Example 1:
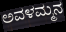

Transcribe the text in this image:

ಅವಳಮ್ಮನ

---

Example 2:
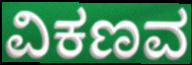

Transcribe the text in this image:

ವಿಕಣವ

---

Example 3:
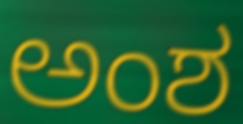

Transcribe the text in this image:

ಅಂಶ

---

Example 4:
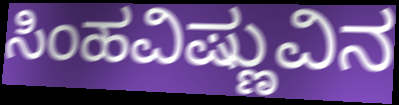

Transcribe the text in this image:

ಸಿಂಹವಿಷ್ಣುವಿನ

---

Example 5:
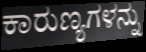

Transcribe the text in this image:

ಕಾರುಣ್ಯಗಳನ್ನು